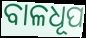
ବାଳଧୂପ